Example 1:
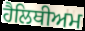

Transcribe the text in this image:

ਹੈਲਿਥੀਅਮ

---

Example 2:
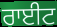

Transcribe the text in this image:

ਰਾਈਟ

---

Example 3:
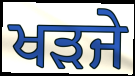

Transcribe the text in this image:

ਖੜਜੇ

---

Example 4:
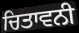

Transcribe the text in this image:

ਚਿਤਾਵਨੀ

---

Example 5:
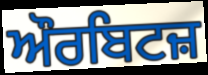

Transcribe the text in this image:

ਔਰਬਿਟਜ਼